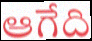
ఆగేది